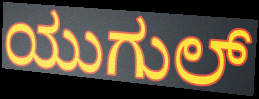
ಯುಗುಲ್